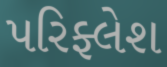
પરિફ્લેશ